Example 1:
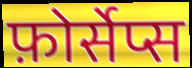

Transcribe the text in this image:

फ़ोर्सेप्स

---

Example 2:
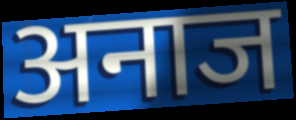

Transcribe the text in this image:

अनाज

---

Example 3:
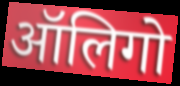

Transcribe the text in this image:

ऑलिगो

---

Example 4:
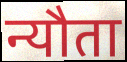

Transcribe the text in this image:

न्यौता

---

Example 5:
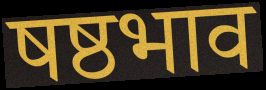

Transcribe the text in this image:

षष्ठभाव